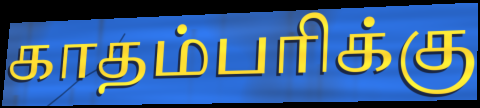
காதம்பரிக்கு